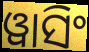
ୱାସିଂ